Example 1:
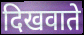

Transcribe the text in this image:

दिखवाते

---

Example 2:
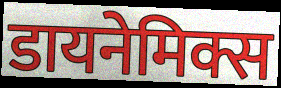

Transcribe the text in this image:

डायनेमिक्स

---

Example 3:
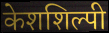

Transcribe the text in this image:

केशशिल्पी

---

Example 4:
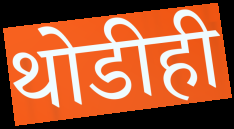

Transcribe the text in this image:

थोडीही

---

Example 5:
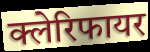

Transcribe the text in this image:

क्लेरिफायर